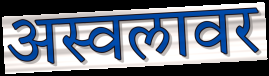
अस्वलावर